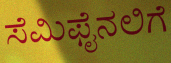
ಸೆಮಿಫೈನಲಿಗೆ